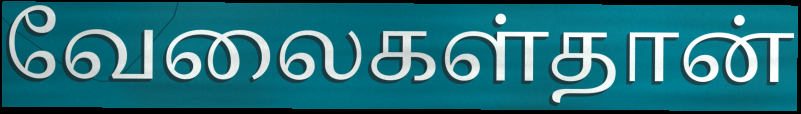
வேலைகள்தான்